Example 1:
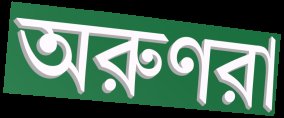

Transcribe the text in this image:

অরুণরা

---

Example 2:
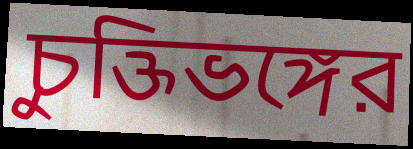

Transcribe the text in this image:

চুক্তিভঙ্গের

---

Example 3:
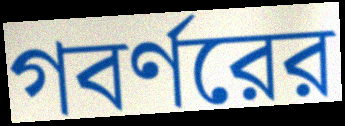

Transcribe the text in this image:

গবর্ণরের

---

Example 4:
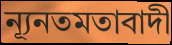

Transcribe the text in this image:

ন্যূনতমতাবাদী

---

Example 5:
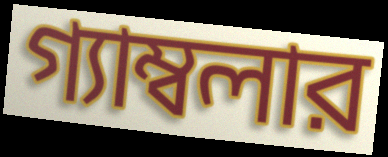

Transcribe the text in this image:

গ্যাম্বলার